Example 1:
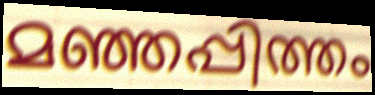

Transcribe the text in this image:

മഞ്ഞപ്പിത്തം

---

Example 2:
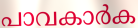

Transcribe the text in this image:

പാവകാർക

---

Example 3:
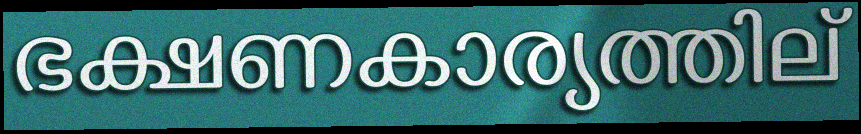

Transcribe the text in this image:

ഭക്ഷണകാര്യത്തില്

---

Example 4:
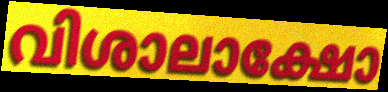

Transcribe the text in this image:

വിശാലാക്ഷോ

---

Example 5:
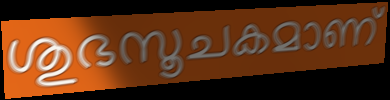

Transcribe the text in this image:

ശുഭസൂചകമാണ്